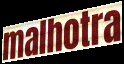
malhotra